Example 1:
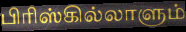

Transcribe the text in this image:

பிரிஸ்கில்லாளும்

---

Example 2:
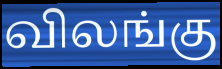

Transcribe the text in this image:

விலங்கு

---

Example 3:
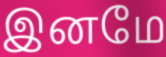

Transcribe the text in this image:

இனமே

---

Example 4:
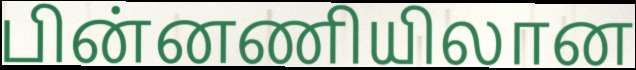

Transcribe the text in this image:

பின்னணியிலான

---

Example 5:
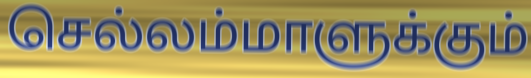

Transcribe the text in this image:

செல்லம்மாளுக்கும்